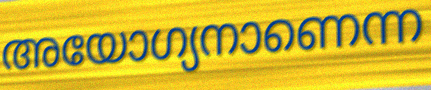
അയോഗ്യനാണെന്ന